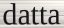
datta